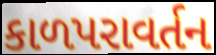
કાળપરાવર્તન